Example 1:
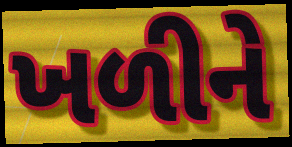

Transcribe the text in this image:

ખળીને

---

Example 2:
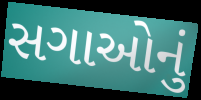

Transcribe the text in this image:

સગાઓનું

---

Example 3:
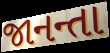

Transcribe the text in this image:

જાનન્તા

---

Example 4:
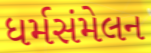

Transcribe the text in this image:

ધર્મસંમેલન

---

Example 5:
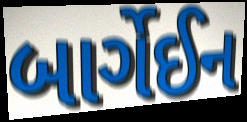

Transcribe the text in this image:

બાર્ગેઈન